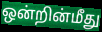
ஒன்றின்மீது